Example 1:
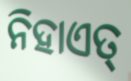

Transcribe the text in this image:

ନିହାଏତ୍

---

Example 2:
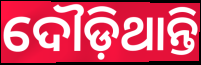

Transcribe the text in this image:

ଦୌଡ଼ିଥାନ୍ତି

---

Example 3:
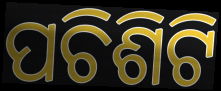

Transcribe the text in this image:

ପଚିଶିଟି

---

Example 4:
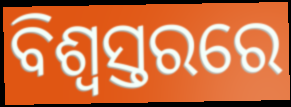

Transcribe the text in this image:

ବିଶ୍ୱସ୍ତରରେ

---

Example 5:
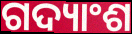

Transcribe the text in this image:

ଗଦ୍ୟାଂଶ